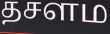
தசளம